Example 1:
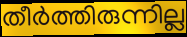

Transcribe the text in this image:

തീർത്തിരുന്നില്ല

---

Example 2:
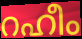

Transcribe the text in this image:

റഹീം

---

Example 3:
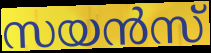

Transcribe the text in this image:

സയൻസ്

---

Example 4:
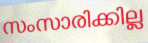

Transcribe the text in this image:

സംസാരിക്കില്ല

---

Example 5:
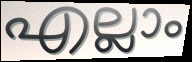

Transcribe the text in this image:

എല്ലാം